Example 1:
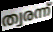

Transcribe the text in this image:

ത്വരന്ന്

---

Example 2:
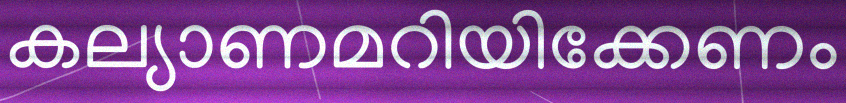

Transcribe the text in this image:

കല്യാണമറിയിക്കേണം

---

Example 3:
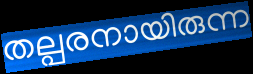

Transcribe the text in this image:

തല്പരനായിരുന്ന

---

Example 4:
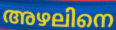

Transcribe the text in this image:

അഴലിനെ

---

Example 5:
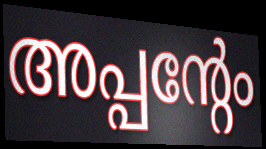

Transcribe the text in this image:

അപ്പന്റേം